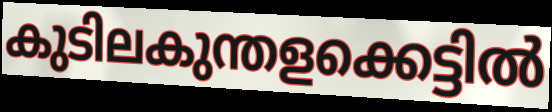
കുടിലകുന്തളക്കെട്ടിൽ